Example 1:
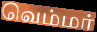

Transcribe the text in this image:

வெம்மர்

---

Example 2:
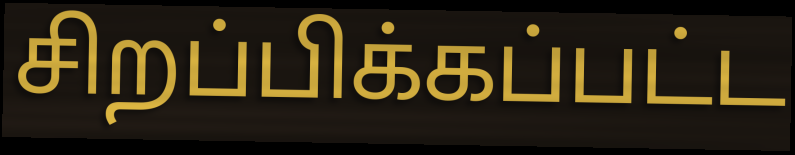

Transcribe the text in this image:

சிறப்பிக்கப்பட்ட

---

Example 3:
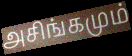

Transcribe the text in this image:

அசிங்கமும்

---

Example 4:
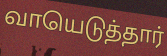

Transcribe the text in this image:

வாயெடுத்தார்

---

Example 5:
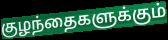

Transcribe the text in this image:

குழந்தைகளுக்கும்